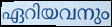
ഏറിയവനും